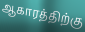
ஆகாரத்திற்கு